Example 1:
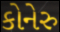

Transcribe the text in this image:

કોનેરુ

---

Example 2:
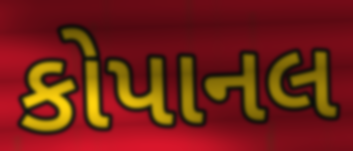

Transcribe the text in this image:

કોપાનલ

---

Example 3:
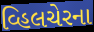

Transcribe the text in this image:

વ્હિલચેરના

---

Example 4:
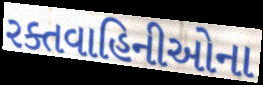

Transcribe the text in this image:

રક્તવાહિનીઓના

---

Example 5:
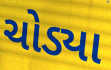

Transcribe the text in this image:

ચોડ્યા